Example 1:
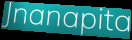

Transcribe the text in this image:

Jnanapita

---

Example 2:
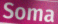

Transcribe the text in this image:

Soma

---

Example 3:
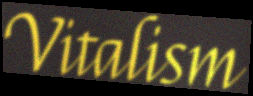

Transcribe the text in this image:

Vitalism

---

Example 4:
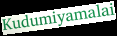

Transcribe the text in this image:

Kudumiyamalai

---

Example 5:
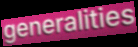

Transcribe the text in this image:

generalities